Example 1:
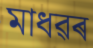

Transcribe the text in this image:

মাধৱৰ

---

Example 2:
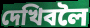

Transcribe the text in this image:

দেখিবলৈ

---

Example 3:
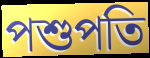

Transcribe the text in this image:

পশুপতি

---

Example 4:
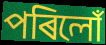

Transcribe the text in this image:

পৰিলোঁ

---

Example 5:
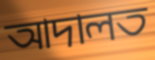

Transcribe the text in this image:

আদালত